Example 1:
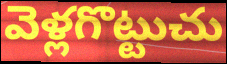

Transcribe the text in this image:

వెళ్లగొట్టుచు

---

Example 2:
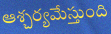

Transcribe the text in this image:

ఆశ్చర్యమేస్తుంది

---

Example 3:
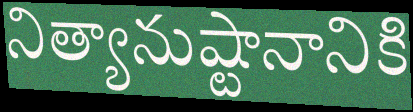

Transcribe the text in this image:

నిత్యానుష్టానానికి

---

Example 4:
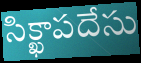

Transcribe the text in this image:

సిక్ఖాపదేసు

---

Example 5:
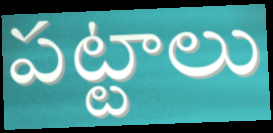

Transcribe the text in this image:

పట్టాలు